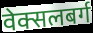
वेक्सलबर्ग